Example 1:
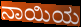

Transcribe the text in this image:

ನಾಯಿಯ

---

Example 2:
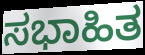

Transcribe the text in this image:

ಸಭಾಹಿತ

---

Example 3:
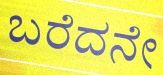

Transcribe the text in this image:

ಬರೆದನೇ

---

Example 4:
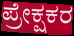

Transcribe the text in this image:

ಪ್ರೇಕ್ಷಕರ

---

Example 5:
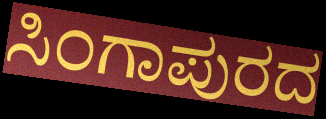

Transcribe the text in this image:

ಸಿಂಗಾಪುರದ